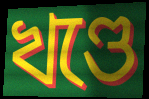
খণ্ডে